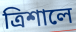
ত্রিশালে